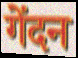
गेंदन